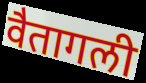
वैतागली